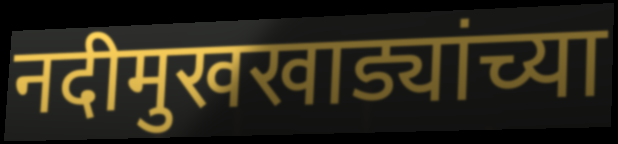
नदीमुखखाड्यांच्या